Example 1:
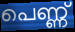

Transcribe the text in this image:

പെണ്ണ്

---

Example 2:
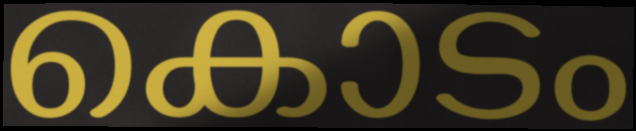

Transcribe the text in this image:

കൊടം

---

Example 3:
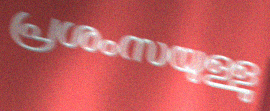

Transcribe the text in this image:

പ്രശംസയുള്ളു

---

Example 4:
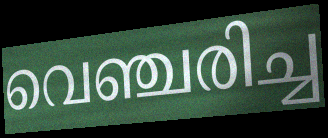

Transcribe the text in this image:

വെഞ്ചരിച്ച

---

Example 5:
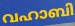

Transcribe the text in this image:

വഹാബി